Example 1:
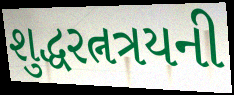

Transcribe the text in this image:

શુદ્ધરત્નત્રયની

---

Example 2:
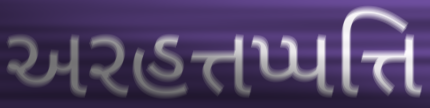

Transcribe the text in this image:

અરહત્તપ્પત્તિ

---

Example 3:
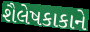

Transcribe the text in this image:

શૈલેષકાકાને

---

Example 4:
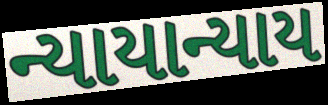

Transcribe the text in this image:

ન્યાયાન્યાય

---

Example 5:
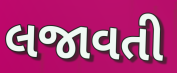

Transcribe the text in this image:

લજાવતી